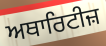
ਅਥਾਰਿਟੀਜ਼